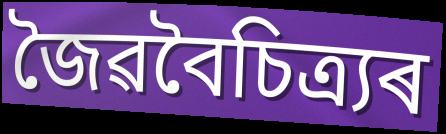
জৈৱবৈচিত্ৰ্যৰ